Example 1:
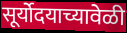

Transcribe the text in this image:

सूर्योदयाच्यावेळी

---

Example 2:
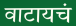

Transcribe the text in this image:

वाटायचं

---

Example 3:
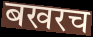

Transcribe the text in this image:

बखरच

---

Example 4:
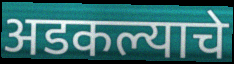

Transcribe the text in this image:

अडकल्याचे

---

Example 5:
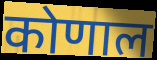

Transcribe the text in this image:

कोणाल